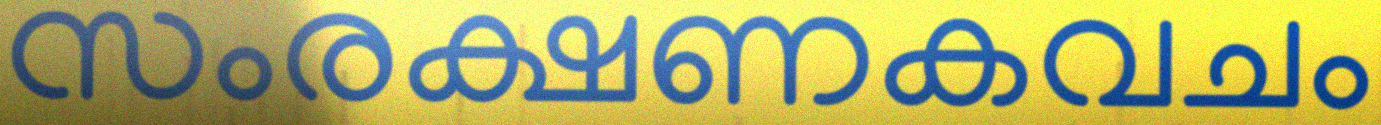
സംരക്ഷണകവചം